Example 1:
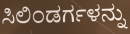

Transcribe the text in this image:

ಸಿಲಿಂಡರ್ಗಳನ್ನು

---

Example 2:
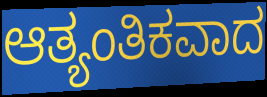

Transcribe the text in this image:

ಆತ್ಯಂತಿಕವಾದ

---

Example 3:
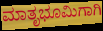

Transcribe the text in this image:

ಮಾತೃಭೂಮಿಗಾಗಿ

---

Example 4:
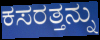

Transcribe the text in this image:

ಕಸರತ್ತನ್ನು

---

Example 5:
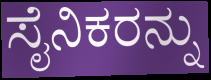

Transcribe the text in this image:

ಸೈನಿಕರನ್ನು